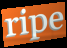
ripe